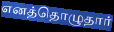
எனத்தொழுதார்